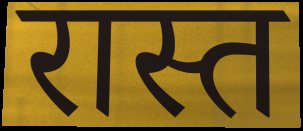
रास्त